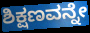
ಶಿಕ್ಷಣವನ್ನೇ